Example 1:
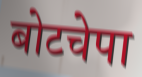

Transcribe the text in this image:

बोटचेपा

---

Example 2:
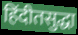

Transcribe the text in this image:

हिंदीतसुद्धा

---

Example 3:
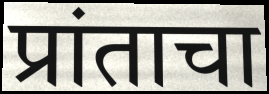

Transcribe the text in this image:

प्रांताचा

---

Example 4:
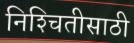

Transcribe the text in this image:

निश्चितीसाठी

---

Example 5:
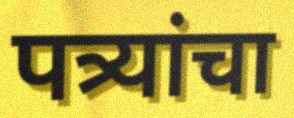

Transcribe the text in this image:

पत्र्यांचा